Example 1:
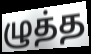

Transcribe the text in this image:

ழுத்த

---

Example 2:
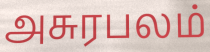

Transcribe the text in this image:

அசுரபலம்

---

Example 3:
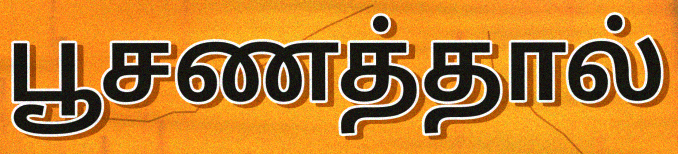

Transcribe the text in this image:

பூசணத்தால்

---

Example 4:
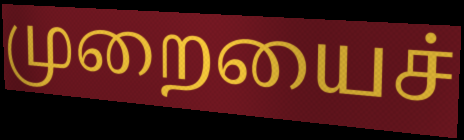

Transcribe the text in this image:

முறையைச்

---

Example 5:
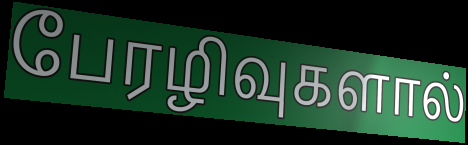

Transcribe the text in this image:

பேரழிவுகளால்